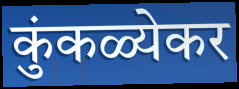
कुंकळ्येकर